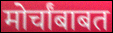
मोर्चांबाबत